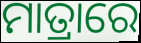
ମାତ୍ରାରେ